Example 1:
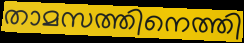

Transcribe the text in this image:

താമസത്തിനെത്തി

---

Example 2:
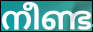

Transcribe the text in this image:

നീണ്ട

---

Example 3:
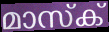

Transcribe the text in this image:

മാസ്‌ക്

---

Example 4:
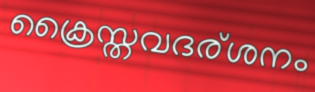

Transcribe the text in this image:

ക്രൈസ്തവദര്ശനം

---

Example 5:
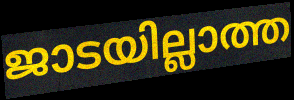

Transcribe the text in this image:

ജാടയില്ലാത്ത